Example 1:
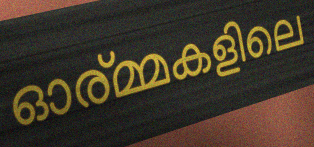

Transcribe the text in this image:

ഓര്മ്മകളിലെ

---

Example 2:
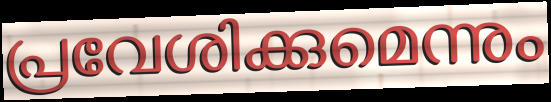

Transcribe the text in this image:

പ്രവേശിക്കുമെന്നും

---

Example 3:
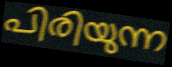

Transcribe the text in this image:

പിരിയുന്ന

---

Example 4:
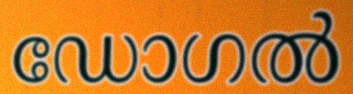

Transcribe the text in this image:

ഡോഗൽ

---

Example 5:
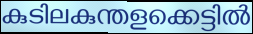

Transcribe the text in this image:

കുടിലകുന്തളക്കെട്ടിൽ